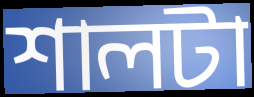
শালটা